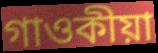
গাওকীয়া